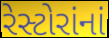
રેસ્ટોરાંનાં